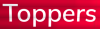
Toppers